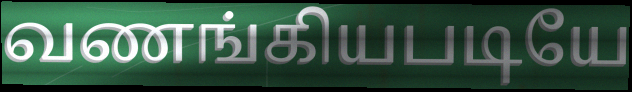
வணங்கியபடியே